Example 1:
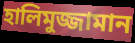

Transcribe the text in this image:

হালিমুজ্জামান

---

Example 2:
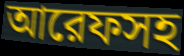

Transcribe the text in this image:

আরেফসহ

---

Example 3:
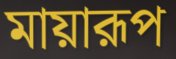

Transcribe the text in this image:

মায়ারূপ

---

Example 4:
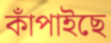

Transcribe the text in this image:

কাঁপাইছে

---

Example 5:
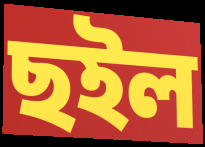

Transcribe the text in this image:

ছইল